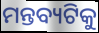
ମନ୍ତବ୍ୟଟିକୁ